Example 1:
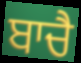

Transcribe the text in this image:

ਬਾਚੈ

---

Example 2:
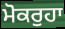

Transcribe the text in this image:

ਮੋਕਰੁਹਾ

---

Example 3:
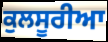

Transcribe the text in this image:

ਕੁਲਸੂਰੀਆ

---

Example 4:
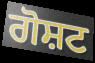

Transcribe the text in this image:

ਗੋਸ਼ਟ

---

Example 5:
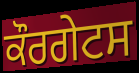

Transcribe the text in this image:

ਕੌਰਗੇਟਸ